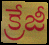
క్రేజీ